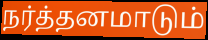
நர்த்தனமாடும்